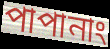
পাপানাং